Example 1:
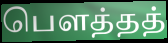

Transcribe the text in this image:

பௌத்தத்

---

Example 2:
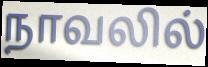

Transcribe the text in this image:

நாவலில்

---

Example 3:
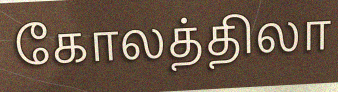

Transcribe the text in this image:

கோலத்திலா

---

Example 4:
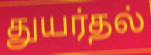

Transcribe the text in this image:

துயர்தல்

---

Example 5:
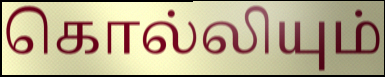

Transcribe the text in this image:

கொல்லியும்